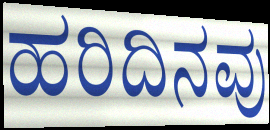
ಹರಿದಿನವು